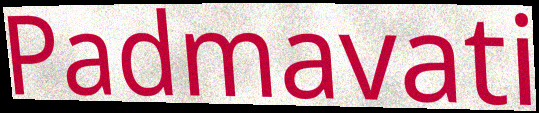
Padmavati